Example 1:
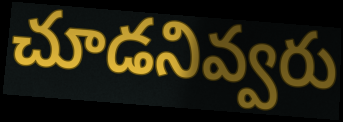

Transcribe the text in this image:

చూడనివ్వరు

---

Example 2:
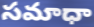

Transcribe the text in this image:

సమాధా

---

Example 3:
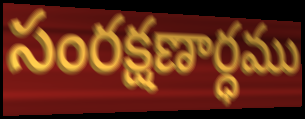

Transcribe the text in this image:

సంరక్షణార్ధము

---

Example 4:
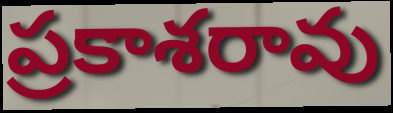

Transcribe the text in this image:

ప్రకాశరావు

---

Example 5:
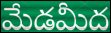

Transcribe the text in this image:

మేడమీద